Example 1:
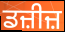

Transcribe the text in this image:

ਡਜ਼ੀਜ਼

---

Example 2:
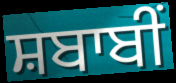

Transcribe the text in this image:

ਸ਼ਬਾਬੀਂ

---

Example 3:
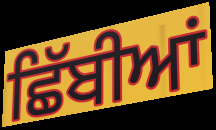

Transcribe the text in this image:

ਛਿੱਬੀਆਂ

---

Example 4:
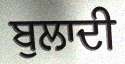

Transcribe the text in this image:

ਬੁਲਾਦੀ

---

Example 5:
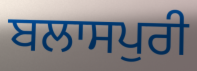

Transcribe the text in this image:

ਬਲਾਸਪੁਰੀ